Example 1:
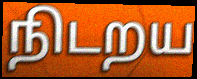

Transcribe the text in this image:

நிடறய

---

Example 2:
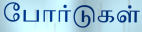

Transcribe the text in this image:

போர்டுகள்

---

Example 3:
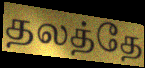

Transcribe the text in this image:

தலத்தே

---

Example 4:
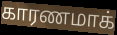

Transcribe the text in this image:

காரணமாக்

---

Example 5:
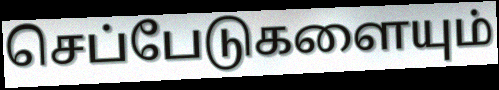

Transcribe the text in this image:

செப்பேடுகளையும்